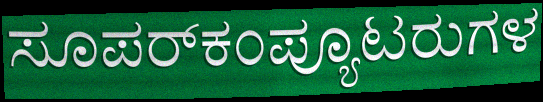
ಸೂಪರ್‌ಕಂಪ್ಯೂಟರುಗಳ